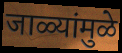
जाळ्यांमुळे